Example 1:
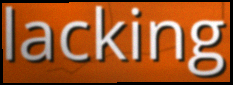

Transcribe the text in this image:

lacking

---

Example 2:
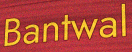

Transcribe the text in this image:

Bantwal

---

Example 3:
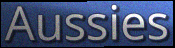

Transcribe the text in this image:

Aussies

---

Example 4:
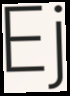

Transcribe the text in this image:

Ej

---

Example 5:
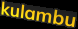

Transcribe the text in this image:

kulambu